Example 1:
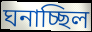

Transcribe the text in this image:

ঘনাচ্ছিল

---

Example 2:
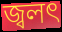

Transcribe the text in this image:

জ্বলৎ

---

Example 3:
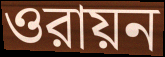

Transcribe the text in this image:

ওরায়ন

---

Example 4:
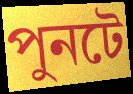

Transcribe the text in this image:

পুনটে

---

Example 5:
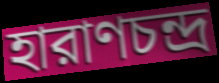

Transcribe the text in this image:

হারাণচন্দ্র